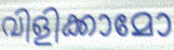
വിളിക്കാമോ